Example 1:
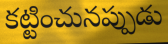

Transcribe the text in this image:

కట్టించునప్పుడు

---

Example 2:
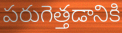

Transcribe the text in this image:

పరుగెత్తడానికి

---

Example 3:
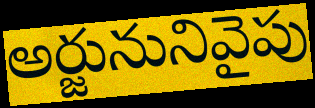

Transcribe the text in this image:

అర్జునునివైపు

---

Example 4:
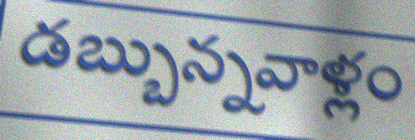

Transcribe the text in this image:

డబ్బున్నవాళ్లం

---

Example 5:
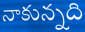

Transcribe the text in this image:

నాకున్నది